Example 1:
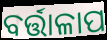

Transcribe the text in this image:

ବର୍ତ୍ତାଳାପ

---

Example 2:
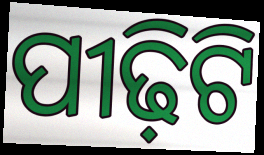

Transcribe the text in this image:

ପୀଢ଼ିଟି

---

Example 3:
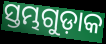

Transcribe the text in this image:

ସ୍ତମ୍ଭଗୁଡ଼ାକ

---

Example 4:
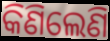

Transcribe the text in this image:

କିଣିଲେଣି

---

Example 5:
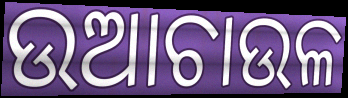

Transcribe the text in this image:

ଉଆଚାଉଳ